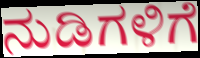
ನುಡಿಗಳಿಗೆ